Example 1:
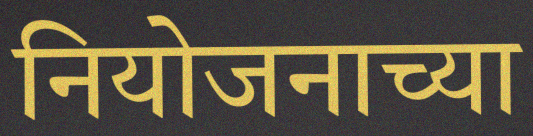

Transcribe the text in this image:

नियोजनाच्या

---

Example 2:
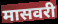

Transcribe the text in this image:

मासवरी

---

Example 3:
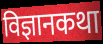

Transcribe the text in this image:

विज्ञानकथा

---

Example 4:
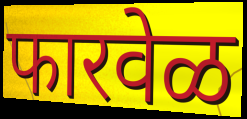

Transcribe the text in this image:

फारवेळ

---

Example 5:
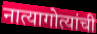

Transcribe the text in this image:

नात्यागोत्यांची